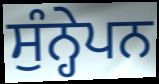
ਸੁੰਨ੍ਹੇਪਨ